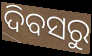
ଦିବସରୁ